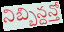
నిబ్బిన్దన్తో